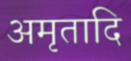
अमृतादि